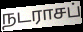
நடராசப்